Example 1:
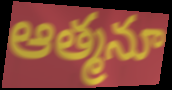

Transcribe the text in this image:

ఆత్మనూ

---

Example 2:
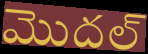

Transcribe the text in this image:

మొదల్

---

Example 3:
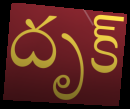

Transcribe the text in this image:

దృక్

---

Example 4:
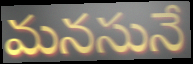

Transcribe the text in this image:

మనసునే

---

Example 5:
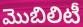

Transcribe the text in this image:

మొబిలిటీ